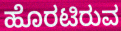
ಹೊರಟಿರುವ